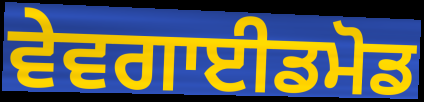
ਵੇਵਗਾਈਡਮੋਡ